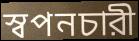
স্বপনচারী